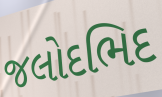
જલોદભિદ